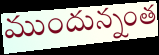
ముందున్నంత